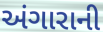
અંગારાની